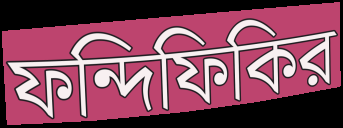
ফন্দিফিকির